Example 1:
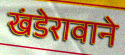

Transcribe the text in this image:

खंडेरावाने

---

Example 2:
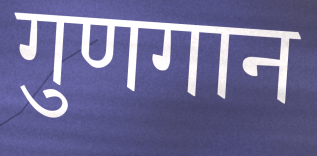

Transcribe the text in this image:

गुणगान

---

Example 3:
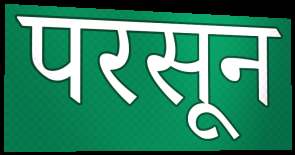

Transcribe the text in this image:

परसून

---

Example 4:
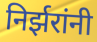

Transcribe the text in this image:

निर्झरांनी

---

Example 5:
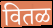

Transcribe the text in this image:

वितळ